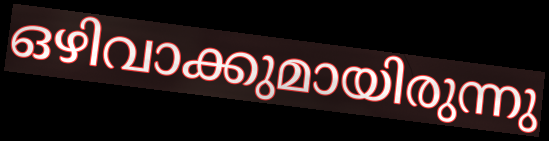
ഒഴിവാക്കുമായിരുന്നു